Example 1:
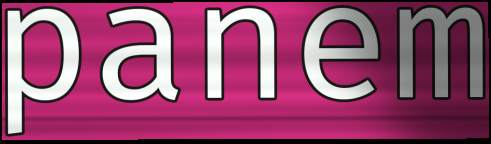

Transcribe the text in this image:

panem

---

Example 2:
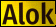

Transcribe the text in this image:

Alok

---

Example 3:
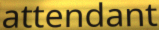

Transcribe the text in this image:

attendant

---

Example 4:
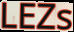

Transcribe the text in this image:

LEZs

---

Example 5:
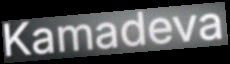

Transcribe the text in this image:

Kamadeva